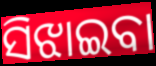
ସିଝାଇବା